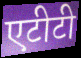
एटीटी